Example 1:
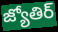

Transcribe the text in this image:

జ్యోతిర్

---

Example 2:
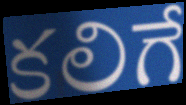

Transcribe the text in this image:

కలిగే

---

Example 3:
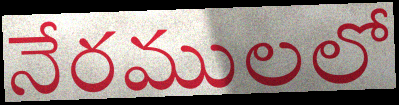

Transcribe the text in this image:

నేరములలో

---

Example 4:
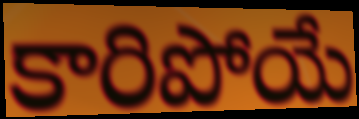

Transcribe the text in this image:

కారిపోయే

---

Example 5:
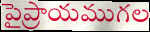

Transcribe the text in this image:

పైప్రాయముగల